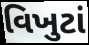
વિખુટાં